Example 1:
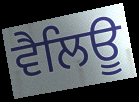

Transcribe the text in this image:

ਵੈਲਿਊ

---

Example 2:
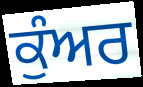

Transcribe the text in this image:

ਕੁੰਅਰ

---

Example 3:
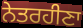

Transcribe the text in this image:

ਨੇਤਰਹੀਣਾ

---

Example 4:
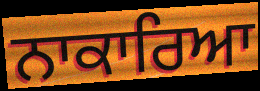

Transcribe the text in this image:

ਨਾਕਾਰਿਆ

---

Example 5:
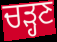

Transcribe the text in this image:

ਚੜ੍ਹਣ